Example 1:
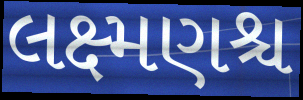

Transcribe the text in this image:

લક્ષ્મણશ્ચ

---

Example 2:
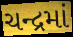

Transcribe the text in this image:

ચન્દ્રમાં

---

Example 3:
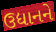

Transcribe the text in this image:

ઉદ્યાનને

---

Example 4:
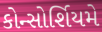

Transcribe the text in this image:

કોન્સોર્શિયમે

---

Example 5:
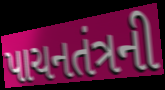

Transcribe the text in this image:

પાચનતંત્રની